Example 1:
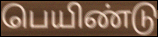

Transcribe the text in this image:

பெயிண்டு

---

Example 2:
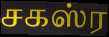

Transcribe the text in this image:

சகஸ்ர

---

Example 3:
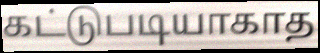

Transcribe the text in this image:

கட்டுபடியாகாத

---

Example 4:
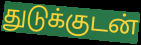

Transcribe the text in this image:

துடுக்குடன்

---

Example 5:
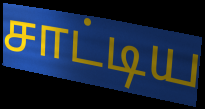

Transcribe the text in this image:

சாட்டிய